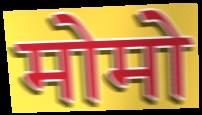
मोमो